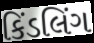
કિંડલિંગ